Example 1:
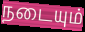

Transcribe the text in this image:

நடையும்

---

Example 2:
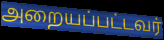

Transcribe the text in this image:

அறையப்பட்டவர்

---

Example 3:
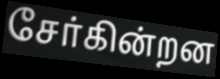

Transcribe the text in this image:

சேர்கின்றன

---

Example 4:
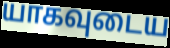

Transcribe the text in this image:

யாகவுடைய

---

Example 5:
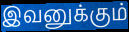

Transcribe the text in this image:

இவனுக்கும்